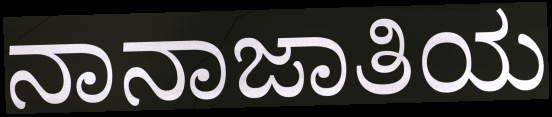
ನಾನಾಜಾತಿಯ